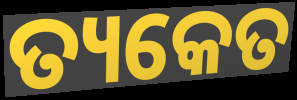
ତ୍ୟକେତ